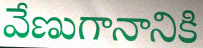
వేణుగానానికి